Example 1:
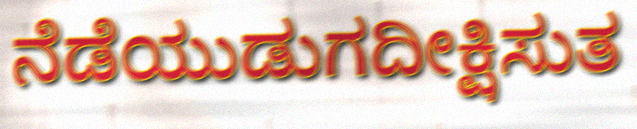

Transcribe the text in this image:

ನೆಡೆಯುಡುಗದೀಕ್ಷಿಸುತ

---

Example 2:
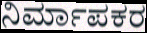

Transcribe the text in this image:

ನಿರ್ಮಾಪಕರ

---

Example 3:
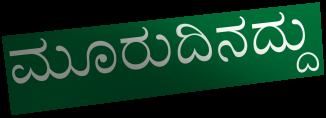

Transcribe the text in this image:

ಮೂರುದಿನದ್ದು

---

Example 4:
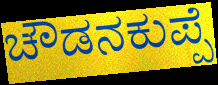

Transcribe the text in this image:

ಚೌಡನಕುಪ್ಪೆ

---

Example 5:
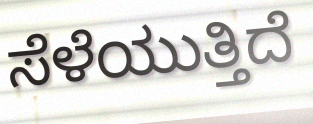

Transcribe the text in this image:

ಸೆಳೆಯುತ್ತಿದೆ